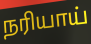
நரியாய்